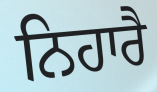
ਨਿਹਾਰੈ